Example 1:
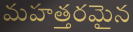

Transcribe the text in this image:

మహత్తరమైన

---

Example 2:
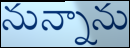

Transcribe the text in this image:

నున్నాను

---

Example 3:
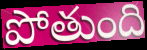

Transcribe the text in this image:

పోతుంది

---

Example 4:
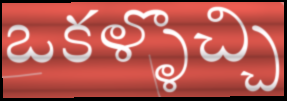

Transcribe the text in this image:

ఒకళ్ళొచ్చి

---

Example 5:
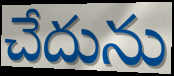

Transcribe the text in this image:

చేదును